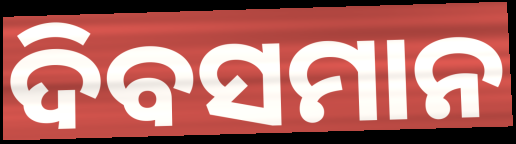
ଦିବସମାନ